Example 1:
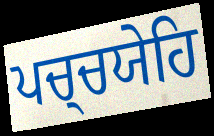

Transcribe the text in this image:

ਪਚ੍ਚਯੇਹਿ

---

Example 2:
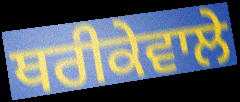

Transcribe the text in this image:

ਥਰੀਕੇਵਾਲੇ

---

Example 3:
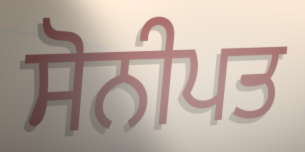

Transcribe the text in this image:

ਸੋਨੀਪਤ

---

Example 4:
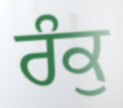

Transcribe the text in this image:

ਰੰਕੁ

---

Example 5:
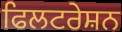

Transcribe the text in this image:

ਫਿਲਟਰੇਸ਼ਨ